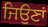
ਜਿਉਣਾਂ